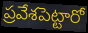
ప్రవేశపెట్టారో